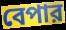
বেপার